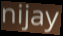
nijay